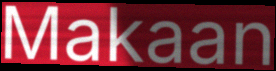
Makaan